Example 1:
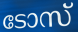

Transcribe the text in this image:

ടോസ്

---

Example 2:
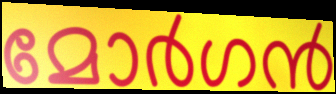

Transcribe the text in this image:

മോർഗൻ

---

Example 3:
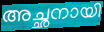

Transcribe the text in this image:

അച്ഛനായി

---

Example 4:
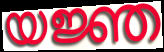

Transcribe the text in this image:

യജ്ഞ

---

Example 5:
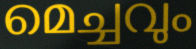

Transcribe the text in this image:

മെച്ചവും